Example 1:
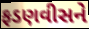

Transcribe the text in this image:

ફડણવીસને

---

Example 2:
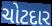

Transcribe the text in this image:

ચોટદાર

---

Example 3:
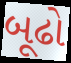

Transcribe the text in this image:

બૂઢો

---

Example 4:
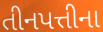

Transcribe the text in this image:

તીનપત્તીના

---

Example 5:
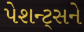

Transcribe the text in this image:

પેશન્ટ્સને